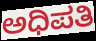
ಅಧಿಪತಿ